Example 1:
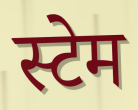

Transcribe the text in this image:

स्टेम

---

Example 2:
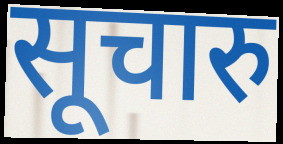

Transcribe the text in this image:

सूचारु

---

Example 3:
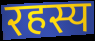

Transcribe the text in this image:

रहस्य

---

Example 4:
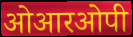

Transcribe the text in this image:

ओआरओपी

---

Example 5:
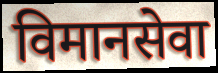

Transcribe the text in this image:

विमानसेवा